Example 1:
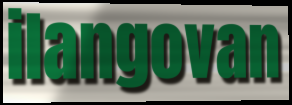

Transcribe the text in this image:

ilangovan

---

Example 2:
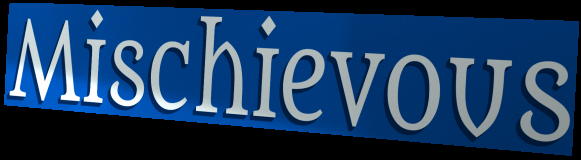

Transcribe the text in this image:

Mischievous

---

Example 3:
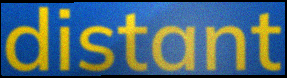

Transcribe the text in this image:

distant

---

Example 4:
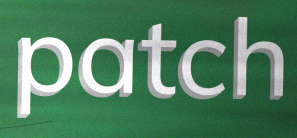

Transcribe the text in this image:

patch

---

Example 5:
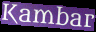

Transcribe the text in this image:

Kambar